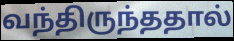
வந்திருந்ததால்